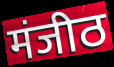
मंजीठ